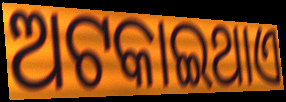
ଅଟକାଇଥାଏ